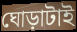
ঘোড়াটাই